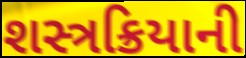
શસ્ત્રક્રિયાની